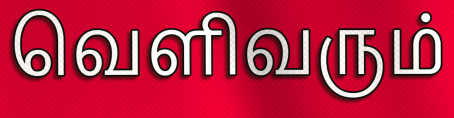
வெளிவரும்